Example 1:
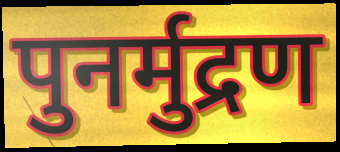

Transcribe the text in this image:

पुनर्मुद्रण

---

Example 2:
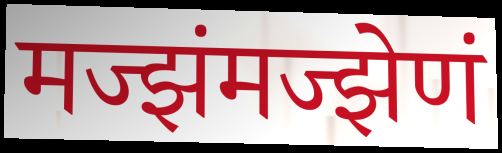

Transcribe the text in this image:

मज्झंमज्झेणं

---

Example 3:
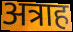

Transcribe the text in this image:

अत्राह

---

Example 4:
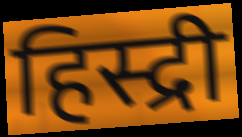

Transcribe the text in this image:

हिस्द्री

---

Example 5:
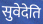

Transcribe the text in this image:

सुवेदेति